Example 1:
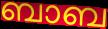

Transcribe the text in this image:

ബാബ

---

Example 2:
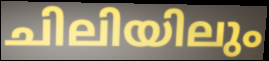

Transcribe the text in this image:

ചിലിയിലും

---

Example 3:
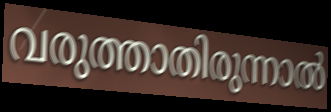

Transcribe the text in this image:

വരുത്താതിരുന്നാൽ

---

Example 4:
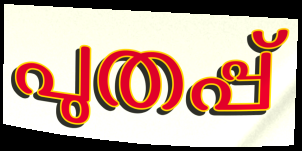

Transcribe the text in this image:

പുതപ്പ്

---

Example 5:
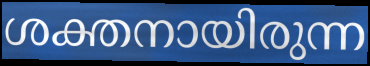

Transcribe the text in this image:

ശക്തനായിരുന്ന